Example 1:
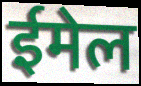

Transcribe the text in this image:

ईमेल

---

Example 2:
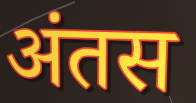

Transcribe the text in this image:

अंतस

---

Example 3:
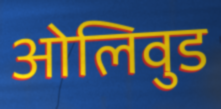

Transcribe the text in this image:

ओलिवुड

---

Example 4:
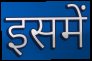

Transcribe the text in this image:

इसमें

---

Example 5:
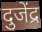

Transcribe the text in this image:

दुजेंद्र